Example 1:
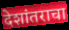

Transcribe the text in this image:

देशांतराचा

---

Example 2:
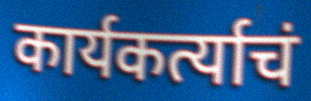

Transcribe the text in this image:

कार्यकर्त्याचं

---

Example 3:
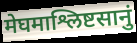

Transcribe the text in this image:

मेघमाश्लिष्टसानुं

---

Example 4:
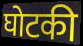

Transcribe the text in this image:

घोटकी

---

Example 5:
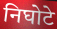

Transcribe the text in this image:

निघोटे